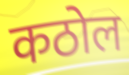
कठोल